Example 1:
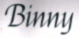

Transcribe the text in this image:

Binny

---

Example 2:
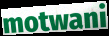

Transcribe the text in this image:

motwani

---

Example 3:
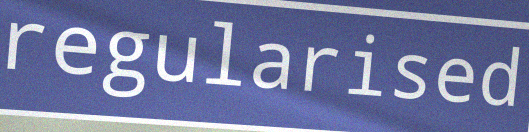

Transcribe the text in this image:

regularised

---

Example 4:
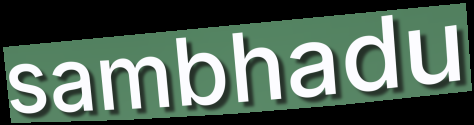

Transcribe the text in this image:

sambhadu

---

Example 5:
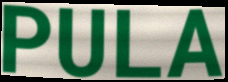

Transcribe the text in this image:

PULA